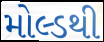
મોલ્ડથી